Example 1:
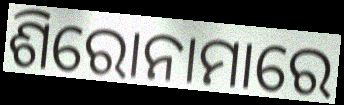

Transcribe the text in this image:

ଶିରୋନାମାରେ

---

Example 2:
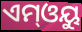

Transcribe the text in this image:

ଏମ୍ଓୟୁ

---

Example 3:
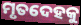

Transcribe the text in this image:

ମୃତଦେହକୁ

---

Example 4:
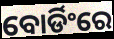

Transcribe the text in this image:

ବୋର୍ଡିଂରେ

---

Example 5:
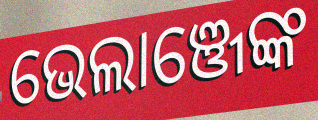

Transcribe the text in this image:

ଭେଲାଞ୍ଜେଙ୍କ